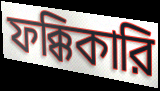
ফক্কিকারি